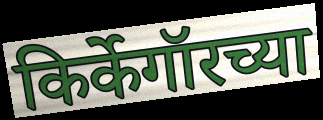
किर्केगॉरच्या